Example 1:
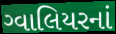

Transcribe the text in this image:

ગ્વાલિયરનાં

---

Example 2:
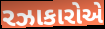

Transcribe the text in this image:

રઝાકારોએ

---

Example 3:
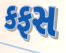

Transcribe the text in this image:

કફસ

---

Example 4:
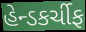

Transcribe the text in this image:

હેન્ડકર્ચીફ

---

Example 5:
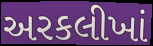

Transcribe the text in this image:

અરકલીખાં